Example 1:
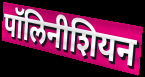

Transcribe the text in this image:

पॉलिनीशियन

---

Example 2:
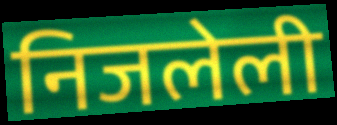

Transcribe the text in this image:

निजलेली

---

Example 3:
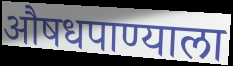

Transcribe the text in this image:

औषधपाण्याला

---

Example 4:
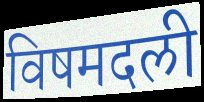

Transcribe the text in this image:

विषमदली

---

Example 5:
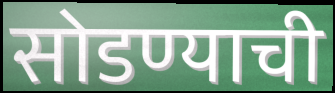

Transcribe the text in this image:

सोडण्याची